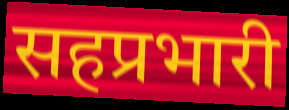
सहप्रभारी